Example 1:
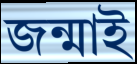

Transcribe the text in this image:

জন্মাই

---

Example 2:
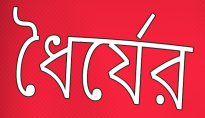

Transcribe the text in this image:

ধৈর্যের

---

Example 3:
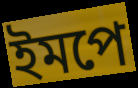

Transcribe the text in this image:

ইমপে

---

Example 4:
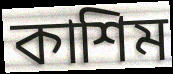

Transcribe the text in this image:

কাশিম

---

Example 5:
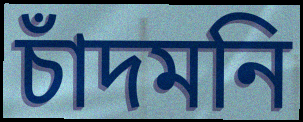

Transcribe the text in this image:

চাঁদমনি